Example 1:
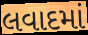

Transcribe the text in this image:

લવાદમાં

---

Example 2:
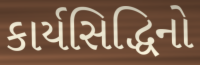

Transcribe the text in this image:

કાર્યસિદ્ધિનો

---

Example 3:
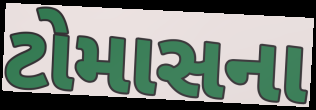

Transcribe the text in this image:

ટોમાસના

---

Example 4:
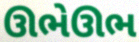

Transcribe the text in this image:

ઊભેઊભ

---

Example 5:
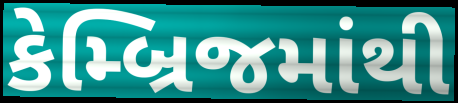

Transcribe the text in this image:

કેમ્બ્રિજમાંથી